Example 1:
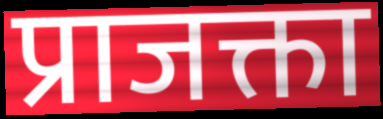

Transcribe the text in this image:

प्राजक्ता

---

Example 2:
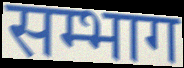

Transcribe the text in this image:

सम्भाग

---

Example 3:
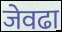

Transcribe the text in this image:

जेवढा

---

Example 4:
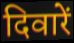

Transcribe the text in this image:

दिवारें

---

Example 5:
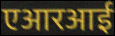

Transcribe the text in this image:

एआरआई